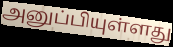
அனுப்பியுள்ளது